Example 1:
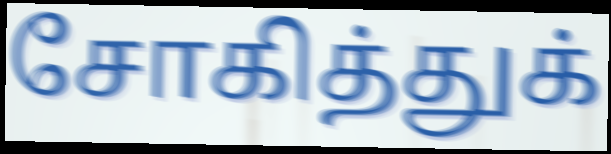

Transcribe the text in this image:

சோகித்துக்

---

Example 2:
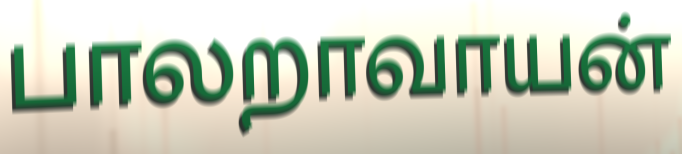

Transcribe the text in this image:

பாலறாவாயன்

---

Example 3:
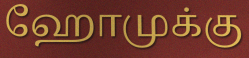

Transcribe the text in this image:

ஹோமுக்கு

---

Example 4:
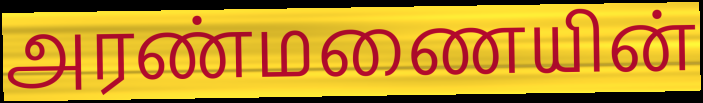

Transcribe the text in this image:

அரண்மணையின்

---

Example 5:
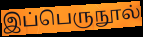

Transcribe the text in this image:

இப்பெருநூல்